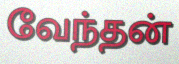
வேந்தன்